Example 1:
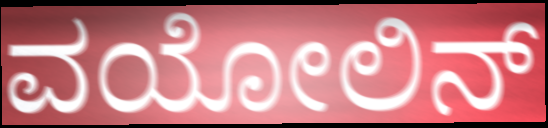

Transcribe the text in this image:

ವಯೋಲಿನ್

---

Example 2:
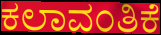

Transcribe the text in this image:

ಕಲಾವಂತಿಕೆ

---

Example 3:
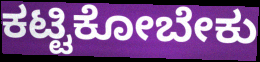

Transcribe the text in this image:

ಕಟ್ಟಿಕೋಬೇಕು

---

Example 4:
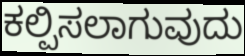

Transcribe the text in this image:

ಕಲ್ಪಿಸಲಾಗುವುದು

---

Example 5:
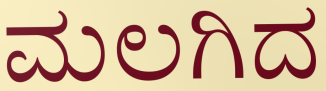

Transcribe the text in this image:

ಮಲಗಿದ